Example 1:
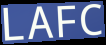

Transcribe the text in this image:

LAFC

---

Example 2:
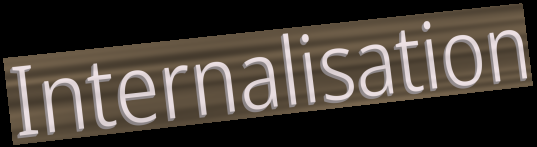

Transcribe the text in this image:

Internalisation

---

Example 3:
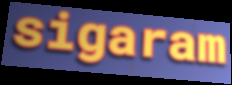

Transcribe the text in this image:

sigaram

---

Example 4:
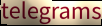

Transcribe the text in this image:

telegrams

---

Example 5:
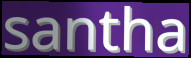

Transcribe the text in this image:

santha